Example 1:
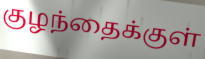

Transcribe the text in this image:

குழந்தைக்குள்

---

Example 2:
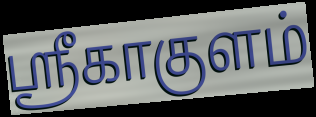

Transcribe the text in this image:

ஸ்ரீகாகுளம்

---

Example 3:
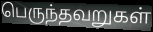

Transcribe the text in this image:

பெருந்தவறுகள்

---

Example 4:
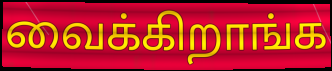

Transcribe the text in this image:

வைக்கிறாங்க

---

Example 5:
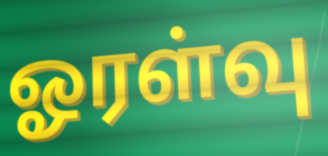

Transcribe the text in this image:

ஓரள்வு